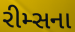
રીમ્સના